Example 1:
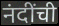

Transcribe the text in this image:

नंदींची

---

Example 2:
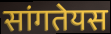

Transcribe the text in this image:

सांगतेयस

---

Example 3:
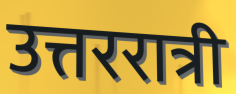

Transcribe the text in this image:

उत्तररात्री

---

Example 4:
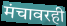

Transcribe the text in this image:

मंचावरही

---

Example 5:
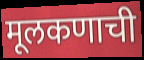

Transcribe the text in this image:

मूलकणाची